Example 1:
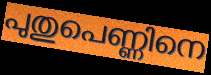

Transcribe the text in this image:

പുതുപെണ്ണിനെ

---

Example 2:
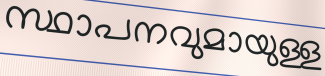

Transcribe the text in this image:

സ്ഥാപനവുമായുള്ള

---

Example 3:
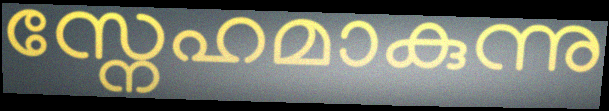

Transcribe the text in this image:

സ്നേഹമാകുന്നു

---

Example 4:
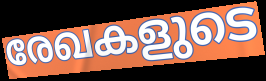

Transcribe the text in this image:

രേഖകളുടെ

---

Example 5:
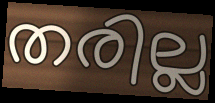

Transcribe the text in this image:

തരില്ല